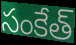
సంకేత్